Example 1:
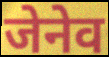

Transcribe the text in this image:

जेनेव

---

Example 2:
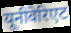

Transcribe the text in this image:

यूनीवेरिएट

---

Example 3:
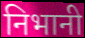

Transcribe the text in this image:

निभानी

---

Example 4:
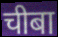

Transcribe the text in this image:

चीबा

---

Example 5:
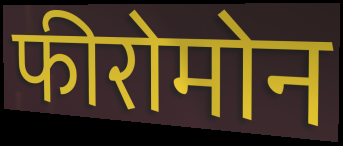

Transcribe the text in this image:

फीरोमोन